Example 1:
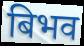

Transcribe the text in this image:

बिभव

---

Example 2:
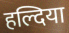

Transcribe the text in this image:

हल्दिया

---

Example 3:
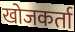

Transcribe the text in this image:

खोजकर्ता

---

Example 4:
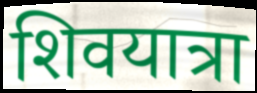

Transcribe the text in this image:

शिवयात्रा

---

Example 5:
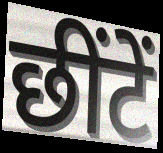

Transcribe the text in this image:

छींटें